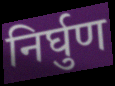
निर्घुण